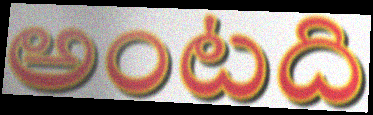
అంటది